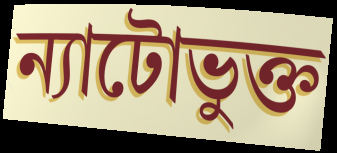
ন্যাটোভুক্ত